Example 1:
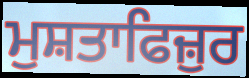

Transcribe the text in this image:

ਮੁਸ਼ਤਾਫਿਜ਼ੁਰ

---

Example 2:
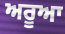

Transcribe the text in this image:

ਅਰੂਆ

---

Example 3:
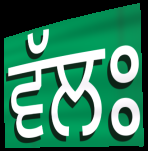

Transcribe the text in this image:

ਵੱਲਃ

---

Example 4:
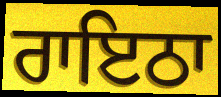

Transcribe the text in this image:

ਰਾਇਠਾ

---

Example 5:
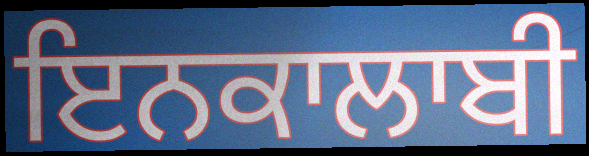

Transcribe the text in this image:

ਇਨਕਾਲਾਬੀ